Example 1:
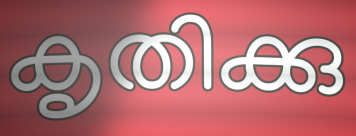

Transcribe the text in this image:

കൃതിക്കു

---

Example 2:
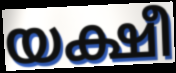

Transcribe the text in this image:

യക്ഷീ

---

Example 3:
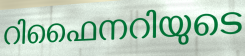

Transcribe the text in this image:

റിഫൈനറിയുടെ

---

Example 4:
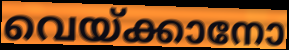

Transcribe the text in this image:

വെയ്ക്കാനോ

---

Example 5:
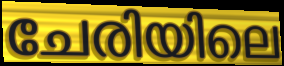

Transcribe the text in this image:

ചേരിയിലെ